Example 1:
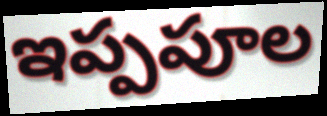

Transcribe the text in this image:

ఇప్పపూల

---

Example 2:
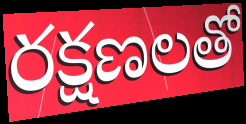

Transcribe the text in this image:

రక్షణలతో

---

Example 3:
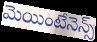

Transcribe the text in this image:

మెయింటేనెన్స్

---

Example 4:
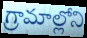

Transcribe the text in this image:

గ్రామాల్లోని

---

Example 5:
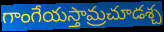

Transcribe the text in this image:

గాంగేయస్తామ్రచూడశ్చ